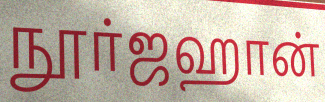
நூர்ஜஹான்